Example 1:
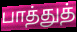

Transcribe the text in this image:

பாத்துத்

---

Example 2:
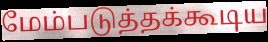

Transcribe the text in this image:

மேம்படுத்தக்கூடிய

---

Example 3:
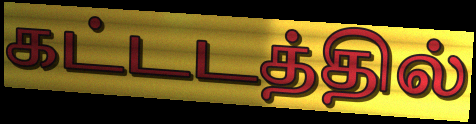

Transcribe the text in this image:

கட்டடத்தில்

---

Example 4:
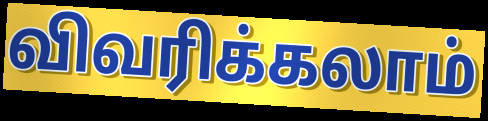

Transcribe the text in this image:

விவரிக்கலாம்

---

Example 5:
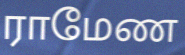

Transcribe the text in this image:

ராமேண